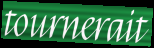
tournerait